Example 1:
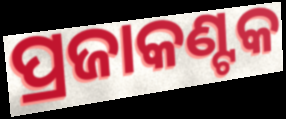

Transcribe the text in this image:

ପ୍ରଜାକଣ୍ଟକ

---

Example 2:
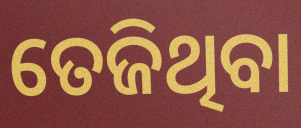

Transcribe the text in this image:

ତେଜିଥିବା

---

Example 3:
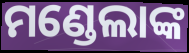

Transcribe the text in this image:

ମଣ୍ଡେଲାଙ୍କ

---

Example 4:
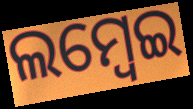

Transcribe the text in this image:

ଲମ୍ଵେଇ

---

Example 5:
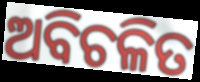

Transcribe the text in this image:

ଅବିଚଳିତ